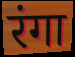
रंगा